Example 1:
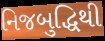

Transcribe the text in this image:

નિજબુદ્ધિથી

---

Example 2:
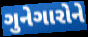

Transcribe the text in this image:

ગુનેગારોને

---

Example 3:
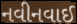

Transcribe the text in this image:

નવીનવાઈ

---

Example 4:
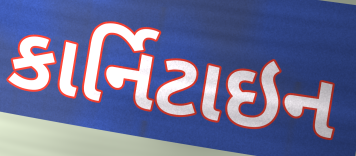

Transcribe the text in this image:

કાર્નિટાઇન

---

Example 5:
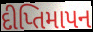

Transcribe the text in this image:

દીપ્તિમાપન